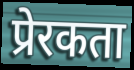
प्रेरकता